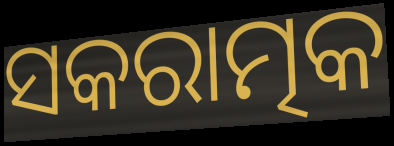
ସକରାତ୍ମକ